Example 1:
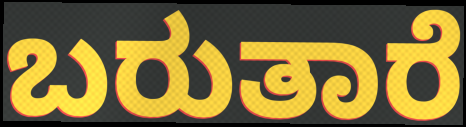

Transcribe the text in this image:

ಬರುತಾರೆ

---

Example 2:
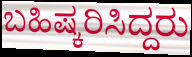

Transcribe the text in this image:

ಬಹಿಷ್ಕರಿಸಿದ್ದರು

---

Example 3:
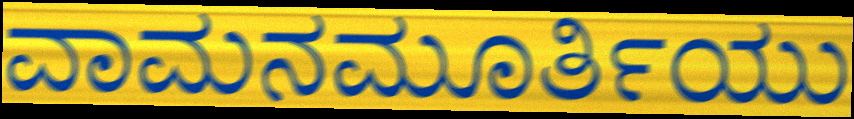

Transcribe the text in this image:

ವಾಮನಮೂರ್ತಿಯು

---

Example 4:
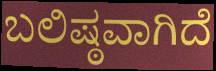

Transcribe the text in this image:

ಬಲಿಷ್ಠವಾಗಿದೆ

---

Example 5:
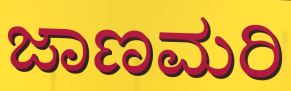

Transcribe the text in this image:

ಜಾಣಮರಿ